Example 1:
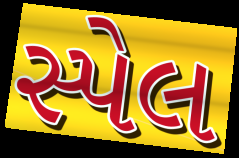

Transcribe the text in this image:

સ્પેલ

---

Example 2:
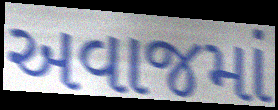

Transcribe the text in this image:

અવાજમાં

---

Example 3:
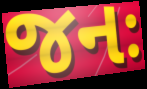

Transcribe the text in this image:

જનઃ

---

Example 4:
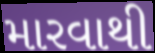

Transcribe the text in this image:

મારવાથી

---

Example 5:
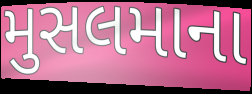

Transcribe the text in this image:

મુસલમાના